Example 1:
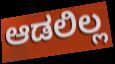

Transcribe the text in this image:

ಆಡಲಿಲ್ಲ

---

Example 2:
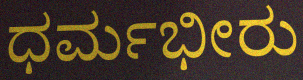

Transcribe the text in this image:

ಧರ್ಮಭೀರು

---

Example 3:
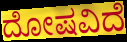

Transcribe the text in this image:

ದೋಷವಿದೆ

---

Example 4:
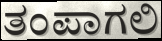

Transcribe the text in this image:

ತಂಪಾಗಲಿ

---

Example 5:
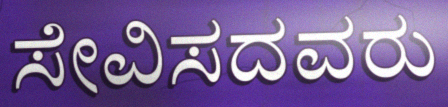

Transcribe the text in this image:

ಸೇವಿಸದವರು